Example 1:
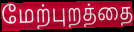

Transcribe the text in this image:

மேற்புறத்தை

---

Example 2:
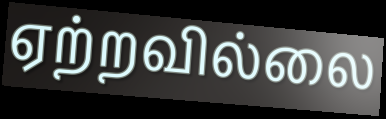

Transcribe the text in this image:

ஏற்றவில்லை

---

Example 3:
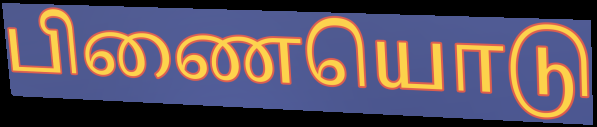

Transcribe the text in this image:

பிணையொடு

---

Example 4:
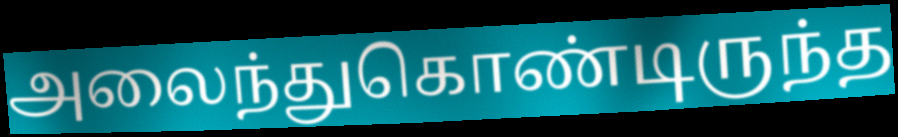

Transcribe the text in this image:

அலைந்துகொண்டிருந்த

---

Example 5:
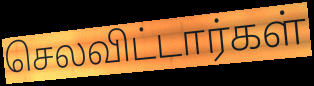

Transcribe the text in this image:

செலவிட்டார்கள்